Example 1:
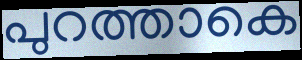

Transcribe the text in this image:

പുറത്താകെ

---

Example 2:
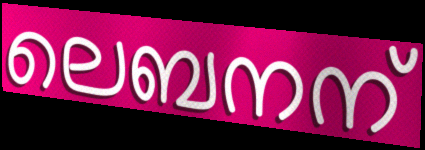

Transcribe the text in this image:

ലെബനന്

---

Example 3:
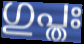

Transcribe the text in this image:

ഗുപ്തഃ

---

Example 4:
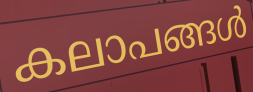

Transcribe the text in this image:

കലാപങ്ങൾ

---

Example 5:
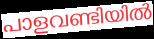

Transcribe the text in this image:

പാളവണ്ടിയിൽ